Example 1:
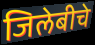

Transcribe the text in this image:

जिलेबीचे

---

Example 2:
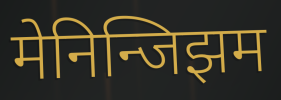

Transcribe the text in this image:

मेनिन्जिझम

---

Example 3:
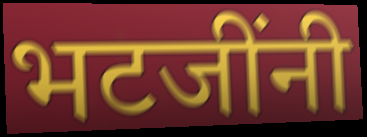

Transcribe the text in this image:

भटजींनी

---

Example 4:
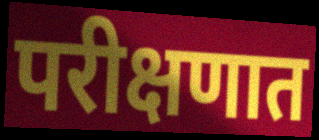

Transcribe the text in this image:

परीक्षणात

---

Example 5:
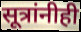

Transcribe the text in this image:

सूत्रांनीही